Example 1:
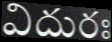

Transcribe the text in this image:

విదురః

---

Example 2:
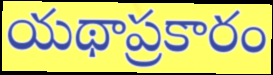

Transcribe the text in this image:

యథాప్రకారం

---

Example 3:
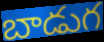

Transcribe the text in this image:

బాడుగ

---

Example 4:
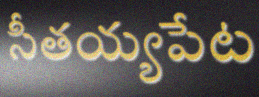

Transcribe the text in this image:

సీతయ్యపేట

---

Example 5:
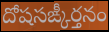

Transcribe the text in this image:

దోషసఙ్కీర్తనం